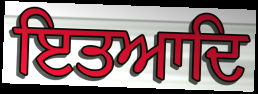
ਇਤਆਦਿ